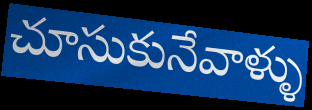
చూసుకునేవాళ్ళు